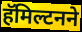
हॅमिल्टनने